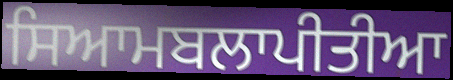
ਸਿਆਮਬਲਾਪੀਤੀਆ